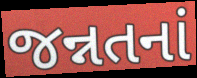
જન્નતનાં